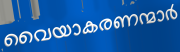
വൈയാകരണന്മാർ